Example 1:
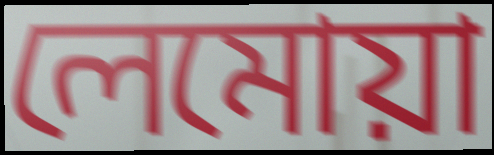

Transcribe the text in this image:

লেমোয়া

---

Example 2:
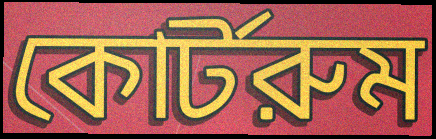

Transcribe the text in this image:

কোর্টরুম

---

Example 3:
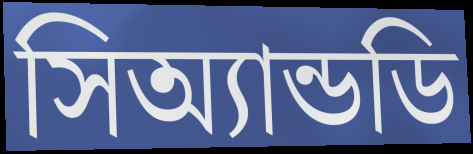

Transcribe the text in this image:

সিঅ্যান্ডডি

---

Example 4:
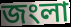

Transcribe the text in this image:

জংলা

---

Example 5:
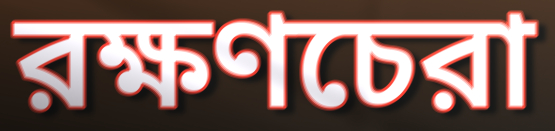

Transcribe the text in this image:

রক্ষণচেরা